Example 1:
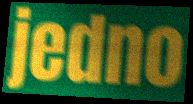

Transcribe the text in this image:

jedno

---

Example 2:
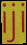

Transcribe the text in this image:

iji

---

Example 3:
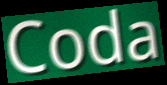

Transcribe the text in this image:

Coda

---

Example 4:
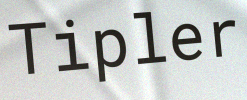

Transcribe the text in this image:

Tipler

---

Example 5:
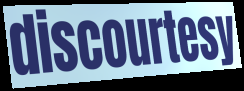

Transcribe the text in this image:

discourtesy